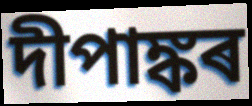
দীপাঙ্কৰ